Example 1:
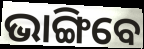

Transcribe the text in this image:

ଭାଙ୍ଗିବେ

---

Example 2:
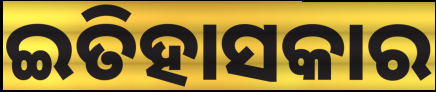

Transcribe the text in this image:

ଇତିହାସକାର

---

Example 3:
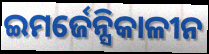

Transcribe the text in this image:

ଇମର୍ଜେନ୍ସିକାଳୀନ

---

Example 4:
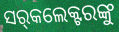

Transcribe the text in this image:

ସର୍‌କଲେକ୍ଟରଙ୍କୁ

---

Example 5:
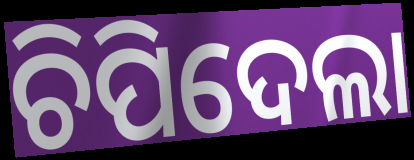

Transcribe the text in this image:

ଚିପିଦେଲା